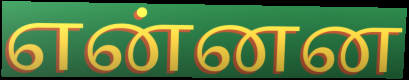
என்னன